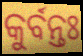
କୁର୍ବନ୍ତଃ